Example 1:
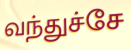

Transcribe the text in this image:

வந்துச்சே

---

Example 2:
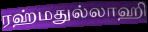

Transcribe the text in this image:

ரஹ்மதுல்லாஹி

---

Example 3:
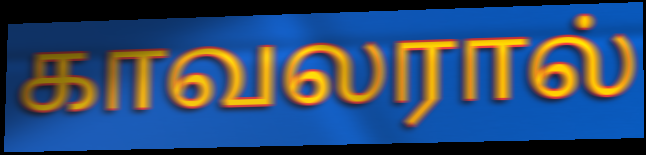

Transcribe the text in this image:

காவலரால்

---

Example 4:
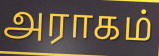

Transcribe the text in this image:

அராகம்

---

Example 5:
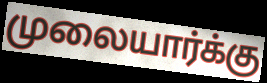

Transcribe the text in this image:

முலையார்க்கு